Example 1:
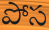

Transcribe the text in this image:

పోస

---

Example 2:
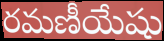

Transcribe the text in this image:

రమణీయేషు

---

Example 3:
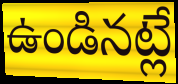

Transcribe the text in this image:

ఉండినట్లే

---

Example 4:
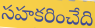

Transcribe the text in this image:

సహకరించేది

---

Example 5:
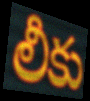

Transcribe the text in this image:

లీకు